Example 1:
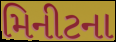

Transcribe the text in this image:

મિનીટના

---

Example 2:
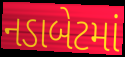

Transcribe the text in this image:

નડાબેટમાં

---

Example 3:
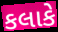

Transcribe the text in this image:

કલાકે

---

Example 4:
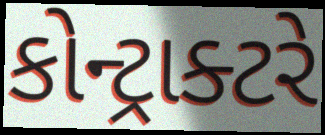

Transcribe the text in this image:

કોન્ટ્રાક્ટરે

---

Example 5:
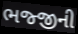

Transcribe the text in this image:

ભજ્જીની